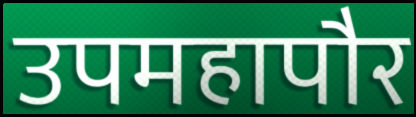
उपमहापौर